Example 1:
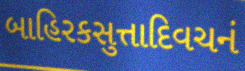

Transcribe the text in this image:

બાહિરકસુત્તાદિવચનં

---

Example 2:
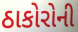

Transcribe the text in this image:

ઠાકોરોની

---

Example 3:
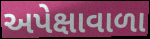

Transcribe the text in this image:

અપેક્ષાવાળા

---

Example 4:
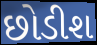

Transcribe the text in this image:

છોડીશ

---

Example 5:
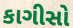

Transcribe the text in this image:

કાગીસો